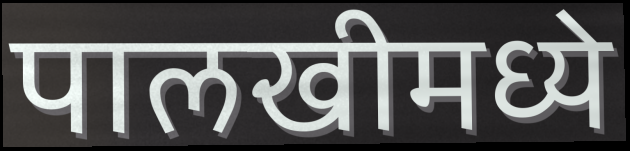
पालखीमध्ये